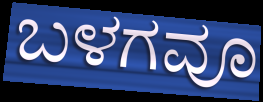
ಬಳಗವೂ